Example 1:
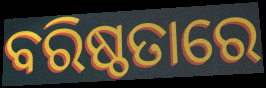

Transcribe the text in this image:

ବରିଷ୍ଠତାରେ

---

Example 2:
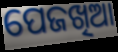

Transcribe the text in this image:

ପେଜଖିଆ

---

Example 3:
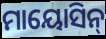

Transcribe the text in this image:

ମାୟୋସିନ୍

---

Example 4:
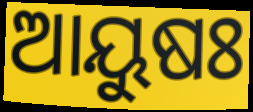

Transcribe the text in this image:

ଆୟୁଷଃ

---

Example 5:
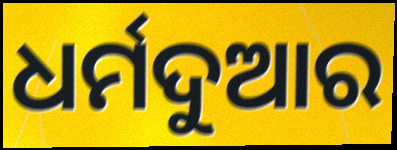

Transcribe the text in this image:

ଧର୍ମଦୁଆର